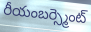
రీయంబర్స్మెంట్